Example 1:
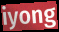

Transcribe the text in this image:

iyong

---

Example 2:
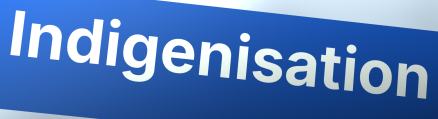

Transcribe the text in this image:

Indigenisation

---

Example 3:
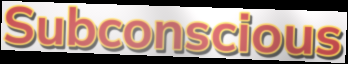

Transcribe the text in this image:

Subconscious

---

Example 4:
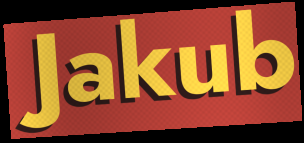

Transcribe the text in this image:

Jakub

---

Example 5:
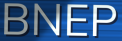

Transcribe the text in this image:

BNEP